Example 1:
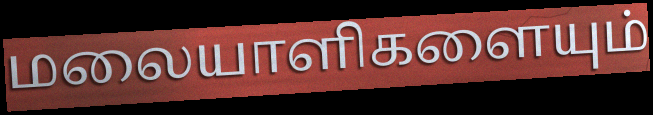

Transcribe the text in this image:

மலையாளிகளையும்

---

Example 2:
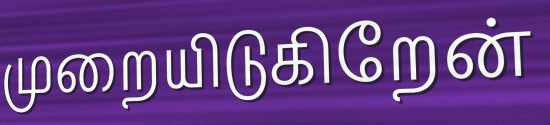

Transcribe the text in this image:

முறையிடுகிறேன்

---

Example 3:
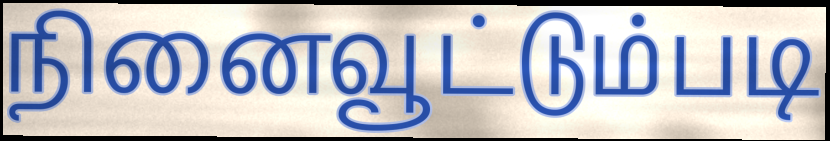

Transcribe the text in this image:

நினைவூட்டும்படி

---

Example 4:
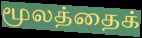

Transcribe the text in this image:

மூலத்தைக்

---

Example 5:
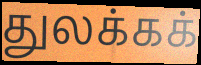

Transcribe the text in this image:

துலக்கக்